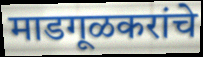
माडगूळकरांचे